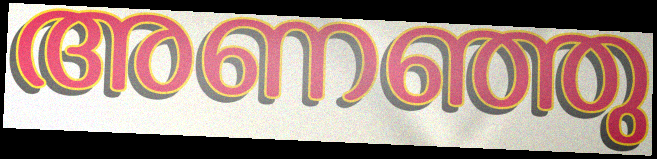
അണഞ്ഞു